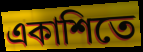
একাশিতে